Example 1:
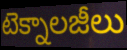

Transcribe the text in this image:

టెక్నాలజీలు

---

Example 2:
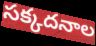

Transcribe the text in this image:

సక్కదనాల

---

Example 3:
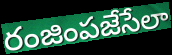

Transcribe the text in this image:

రంజింపజేసేలా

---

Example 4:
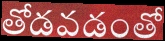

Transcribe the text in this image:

తోడవడంతో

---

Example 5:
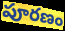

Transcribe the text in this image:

పూరణం